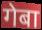
गेबा